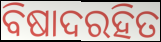
ବିଷାଦରହିତ